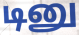
டினு